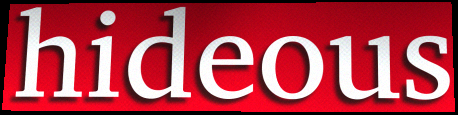
hideous